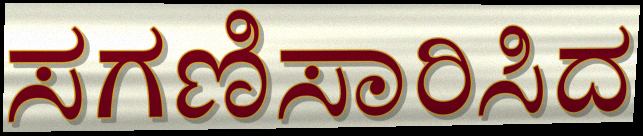
ಸಗಣಿಸಾರಿಸಿದ